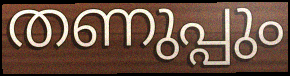
തണുപ്പും